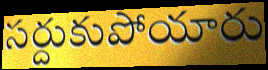
సర్దుకుపోయారు